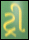
ટ્રી